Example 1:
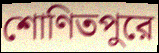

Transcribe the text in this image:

শোণিতপুরে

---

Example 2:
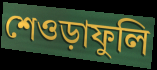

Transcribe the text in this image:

শেওড়াফুলি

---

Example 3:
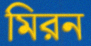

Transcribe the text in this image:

মিরন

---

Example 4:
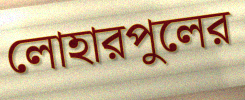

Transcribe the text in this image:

লোহারপুলের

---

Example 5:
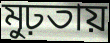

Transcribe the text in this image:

মুঢ়তায়